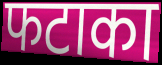
फटाका